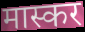
मास्कर